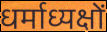
धर्माध्यक्षों